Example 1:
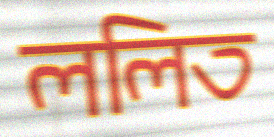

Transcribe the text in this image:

ললিত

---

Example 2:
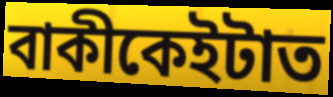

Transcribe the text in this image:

বাকীকেইটাত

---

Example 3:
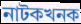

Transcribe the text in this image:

নাটকখনক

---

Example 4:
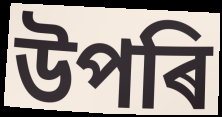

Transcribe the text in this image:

উপৰি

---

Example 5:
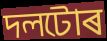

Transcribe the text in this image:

দলটোৰ